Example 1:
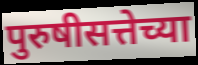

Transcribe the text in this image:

पुरुषीसत्तेच्या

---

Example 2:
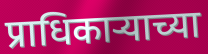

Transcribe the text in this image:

प्राधिकाऱ्याच्या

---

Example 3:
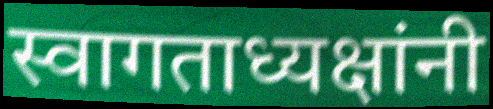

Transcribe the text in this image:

स्वागताध्यक्षांनी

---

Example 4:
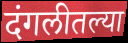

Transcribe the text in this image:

दंगलीतल्या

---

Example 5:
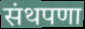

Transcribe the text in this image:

संथपणा